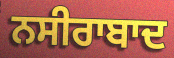
ਨਸੀਰਾਬਾਦ